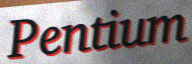
Pentium